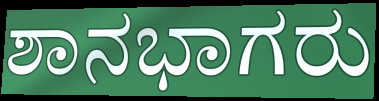
ಶಾನಭಾಗರು